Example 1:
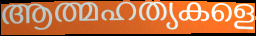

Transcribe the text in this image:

ആത്മഹത്യകളെ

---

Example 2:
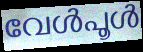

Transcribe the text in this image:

വേൾപൂൾ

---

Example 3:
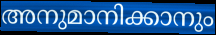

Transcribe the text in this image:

അനുമാനിക്കാനും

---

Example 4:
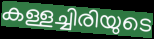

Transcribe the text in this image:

കള്ളച്ചിരിയുടെ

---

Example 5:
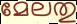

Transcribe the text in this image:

മേലതു